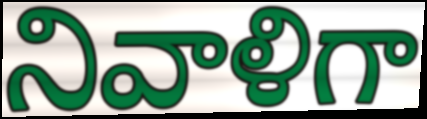
నివాళిగా